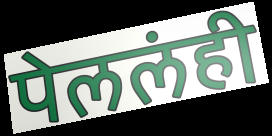
पेललंही